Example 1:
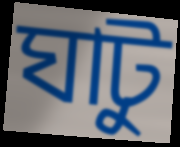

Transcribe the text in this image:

ঘাটু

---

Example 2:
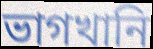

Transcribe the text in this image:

ভাগখানি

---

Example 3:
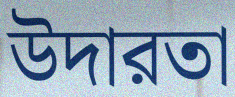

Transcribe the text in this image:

উদারতা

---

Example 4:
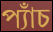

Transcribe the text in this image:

প্যাঁচ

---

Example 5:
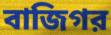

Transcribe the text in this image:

বাজিগর